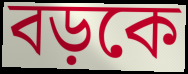
বড়কে